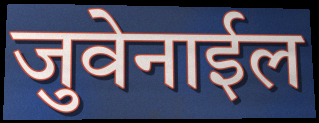
जुवेनाईल